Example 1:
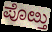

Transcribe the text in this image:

ಪೊೞ್ತು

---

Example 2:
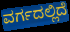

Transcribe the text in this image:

ವರ್ಗದಲ್ಲಿದೆ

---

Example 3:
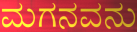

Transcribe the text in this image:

ಮಗನವನು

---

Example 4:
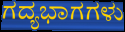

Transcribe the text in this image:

ಗದ್ಯಭಾಗಗಳು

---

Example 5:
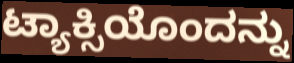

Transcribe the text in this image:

ಟ್ಯಾಕ್ಸಿಯೊಂದನ್ನು